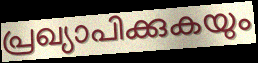
പ്രഖ്യാപിക്കുകയും